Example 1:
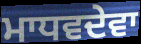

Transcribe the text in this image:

ਮਾਧਵਦੇਵਾ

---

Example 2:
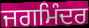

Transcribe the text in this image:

ਜਗਮਿੰਦਰ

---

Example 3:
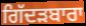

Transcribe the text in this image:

ਗਿੱਦੜਬਾਰਾ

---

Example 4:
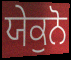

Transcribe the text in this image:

ਯੇਕੁਨੋ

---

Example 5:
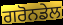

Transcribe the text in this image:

ਗਰੋਨਡੇਲ